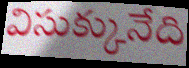
విసుక్కునేది